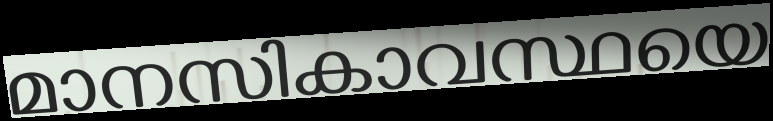
മാനസികാവസ്ഥയെ